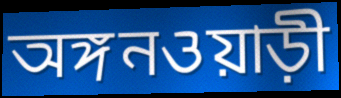
অঙ্গনওয়াড়ী